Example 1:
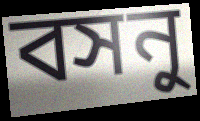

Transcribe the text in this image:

বসনু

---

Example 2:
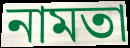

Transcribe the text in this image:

নামতা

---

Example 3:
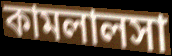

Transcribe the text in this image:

কামলালসা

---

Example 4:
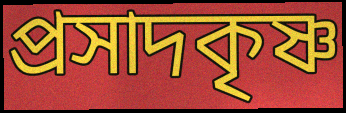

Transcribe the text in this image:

প্রসাদকৃষ্ণ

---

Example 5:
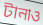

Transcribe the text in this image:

টানাও